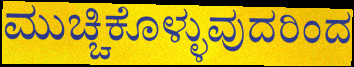
ಮುಚ್ಚಿಕೊಳ್ಳುವುದರಿಂದ